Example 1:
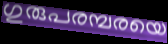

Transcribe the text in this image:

ഗുരുപരമ്പരയെ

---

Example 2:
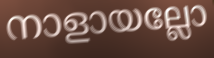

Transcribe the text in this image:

നാളായല്ലോ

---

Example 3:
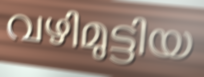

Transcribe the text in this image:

വഴിമുട്ടിയ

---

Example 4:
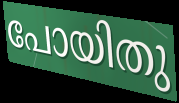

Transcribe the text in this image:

പോയിതു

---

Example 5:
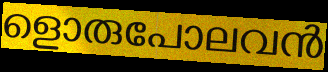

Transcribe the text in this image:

ളൊരുപോലവൻ